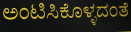
ಅಂಟಿಸಿಕೊಳ್ಳದಂತೆ